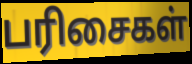
பரிசைகள்